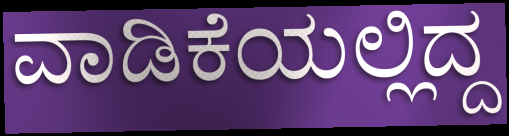
ವಾಡಿಕೆಯಲ್ಲಿದ್ದ